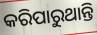
କରିପାରୁଥାନ୍ତି